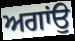
ਅਗਾਂਉ